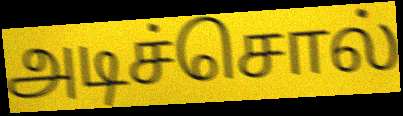
அடிச்சொல்